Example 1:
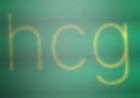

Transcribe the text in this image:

hcg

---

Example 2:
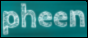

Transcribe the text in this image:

pheen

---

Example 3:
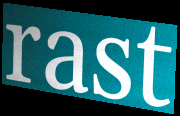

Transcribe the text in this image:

rast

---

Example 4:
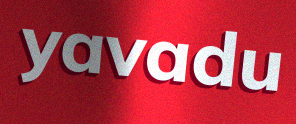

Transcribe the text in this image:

yavadu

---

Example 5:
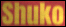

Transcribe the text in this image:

Shuko